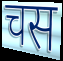
चस